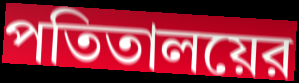
পতিতালয়ের